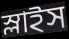
স্লাইস